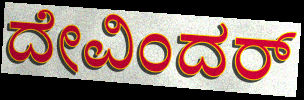
ದೇವಿಂದರ್